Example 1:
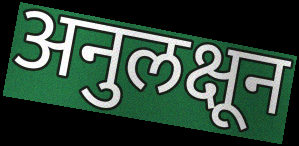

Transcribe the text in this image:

अनुलक्षून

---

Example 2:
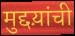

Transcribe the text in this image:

मुद्दय़ांची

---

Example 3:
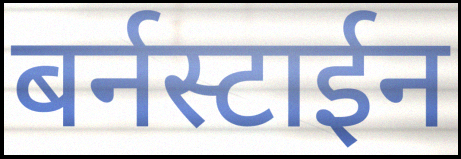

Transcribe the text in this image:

बर्नस्टाईन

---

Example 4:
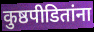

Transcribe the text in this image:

कुष्ठपीडितांना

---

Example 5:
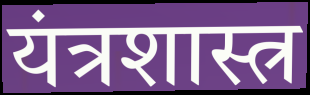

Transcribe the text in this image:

यंत्रशास्त्र